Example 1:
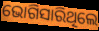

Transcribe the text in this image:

ଭୋଗିସାରିଥିଲେ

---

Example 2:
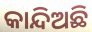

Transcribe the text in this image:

କାନ୍ଦିଅଛି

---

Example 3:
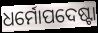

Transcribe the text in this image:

ଧର୍ମୋପଦେଷ୍ଟା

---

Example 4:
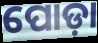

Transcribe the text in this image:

ପୋଡ଼ା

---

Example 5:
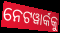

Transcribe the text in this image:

ନେଟୱାର୍କକୁ